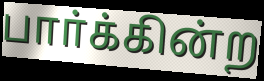
பார்க்கின்ற